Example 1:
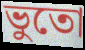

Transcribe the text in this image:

ভুতো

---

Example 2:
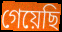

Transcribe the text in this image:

গেয়েছি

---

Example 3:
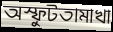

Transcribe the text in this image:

অস্ফুটতামাখা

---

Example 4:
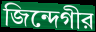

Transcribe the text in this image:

জিন্দেগীর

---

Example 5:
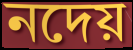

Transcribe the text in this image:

নদেয়